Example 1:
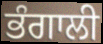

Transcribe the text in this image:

ਭੰਗਾਲੀ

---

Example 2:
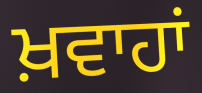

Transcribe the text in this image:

ਖ਼ਵਾਹਾਂ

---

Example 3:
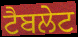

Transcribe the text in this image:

ਟੈਬਲੇਟ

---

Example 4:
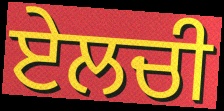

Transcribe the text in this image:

ਏਲਚੀ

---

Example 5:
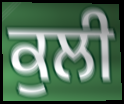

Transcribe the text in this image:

ਕੁਲੀ